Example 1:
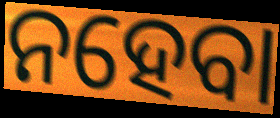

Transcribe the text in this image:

ନହେବା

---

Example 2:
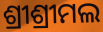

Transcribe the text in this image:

ଶ୍ରୀଶ୍ରୀମଲ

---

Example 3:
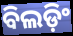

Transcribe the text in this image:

ବିଲଡ଼ିଂ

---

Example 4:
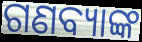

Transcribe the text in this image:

ଗଣବ୍ୟାଙ୍କ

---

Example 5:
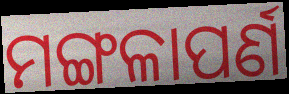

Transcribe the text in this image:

ମଙ୍ଗଳାପର୍ଣ